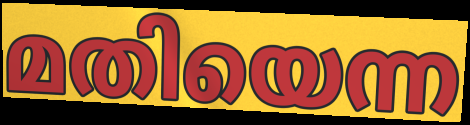
മതിയെന്ന